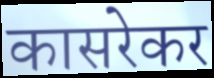
कासरेकर